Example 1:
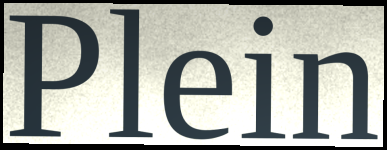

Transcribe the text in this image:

Plein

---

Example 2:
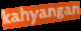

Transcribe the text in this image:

kahyangan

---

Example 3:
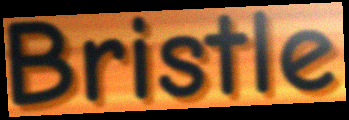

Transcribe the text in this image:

Bristle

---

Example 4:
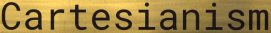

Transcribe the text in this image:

Cartesianism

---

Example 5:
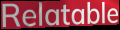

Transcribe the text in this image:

Relatable